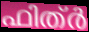
ഫിത്ർ